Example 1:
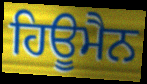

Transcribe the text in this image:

ਹਿਊਮੈਨ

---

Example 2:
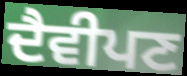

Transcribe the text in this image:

ਦੈਵੀਪਣ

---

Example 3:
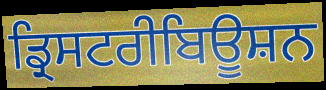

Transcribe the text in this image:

ਡ੍ਰਿਸਟਰੀਬਿਊਸ਼ਨ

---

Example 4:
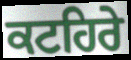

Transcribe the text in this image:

ਕਟਹਿਰੇ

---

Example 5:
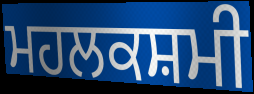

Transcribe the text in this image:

ਮਹਲਕਸ਼ਮੀ